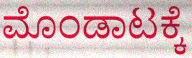
ಮೊಂಡಾಟಕ್ಕೆ